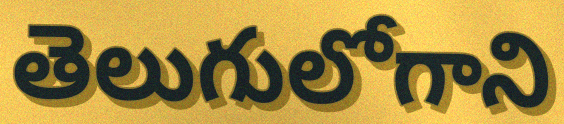
తెలుగులోగాని